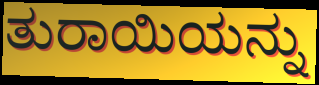
ತುರಾಯಿಯನ್ನು